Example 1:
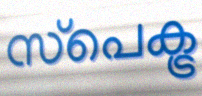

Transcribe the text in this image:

സ്‌പെക്ട്ര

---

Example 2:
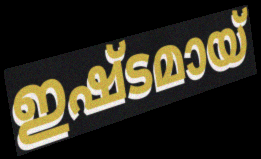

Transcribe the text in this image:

ഇഷ്ടമായ്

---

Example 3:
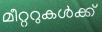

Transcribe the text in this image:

മീറ്ററുകൾക്ക്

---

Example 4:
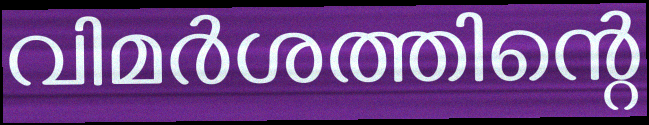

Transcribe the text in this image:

വിമർശത്തിന്റെ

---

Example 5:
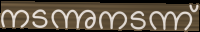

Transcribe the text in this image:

നടന്നുനടന്ന്